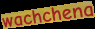
wachchena